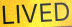
LIVED